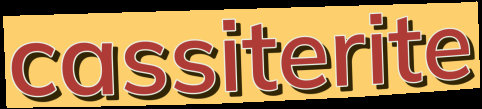
cassiterite